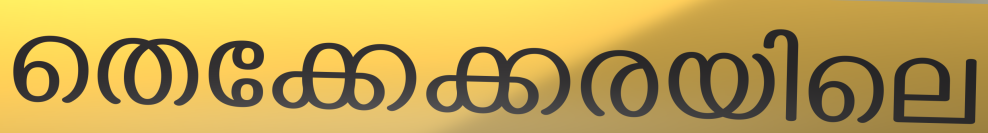
തെക്കേക്കരയിലെ